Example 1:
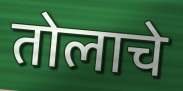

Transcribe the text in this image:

तोलाचे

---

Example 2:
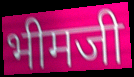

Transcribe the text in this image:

भीमजी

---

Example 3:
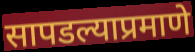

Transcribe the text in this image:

सापडल्याप्रमाणे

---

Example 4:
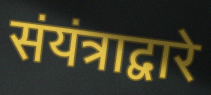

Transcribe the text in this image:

संयंत्राद्वारे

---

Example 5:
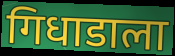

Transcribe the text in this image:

गिधाडाला